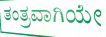
ತಂತ್ರವಾಗಿಯೇ